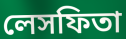
লেসফিতা